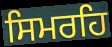
ਸਿਮਰਹਿ